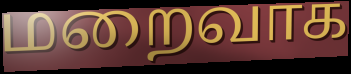
மறைவாக